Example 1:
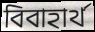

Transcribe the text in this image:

বিবাহার্থ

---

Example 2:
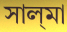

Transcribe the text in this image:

সাল্‌মা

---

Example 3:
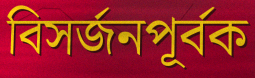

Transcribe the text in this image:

বিসর্জনপূর্বক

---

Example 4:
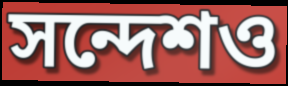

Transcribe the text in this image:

সন্দেশও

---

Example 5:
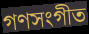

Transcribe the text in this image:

গণসংগীত